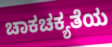
ಚಾಕಚಕ್ಯತೆಯ